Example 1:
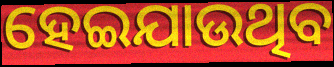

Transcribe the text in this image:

ହେଇଯାଉଥିବ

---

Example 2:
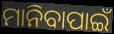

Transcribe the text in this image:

ମାନିବାପାଇଁ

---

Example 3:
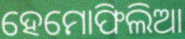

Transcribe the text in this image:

ହେମୋଫିଲିଆ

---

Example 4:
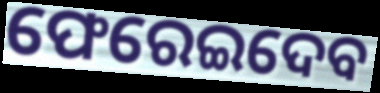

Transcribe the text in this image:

ଫେରେଇଦେବ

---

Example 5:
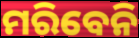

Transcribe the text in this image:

ମରିବେନି